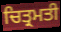
ਚਿਤ੍ਰਮਤੀ